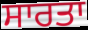
ਸਾਰਤਾ